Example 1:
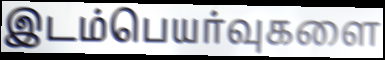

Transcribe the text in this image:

இடம்பெயர்வுகளை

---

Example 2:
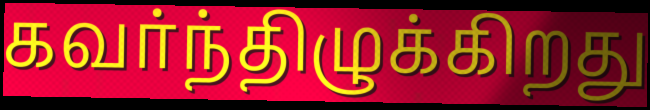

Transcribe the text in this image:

கவர்ந்திழுக்கிறது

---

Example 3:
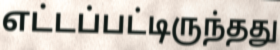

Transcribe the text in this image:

எட்டப்பட்டிருந்தது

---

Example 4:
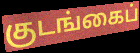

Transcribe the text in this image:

குடங்கைப்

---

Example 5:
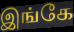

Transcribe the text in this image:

இங்கே